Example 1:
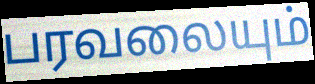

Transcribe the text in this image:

பரவலையும்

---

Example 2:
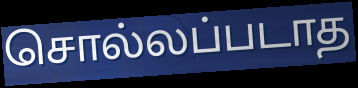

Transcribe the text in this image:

சொல்லப்படாத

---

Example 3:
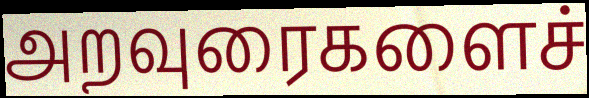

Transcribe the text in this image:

அறவுரைகளைச்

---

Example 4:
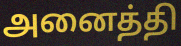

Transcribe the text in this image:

அனைத்தி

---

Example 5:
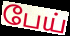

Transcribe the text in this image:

பேய்